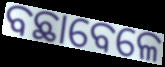
ବଛାବେଳେ